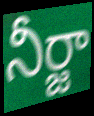
నీర్జా